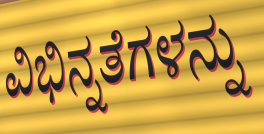
ವಿಭಿನ್ನತೆಗಳನ್ನು